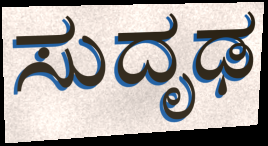
ಸುದೃಢ